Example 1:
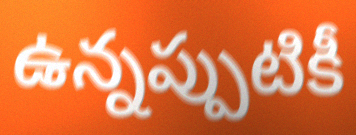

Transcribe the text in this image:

ఉన్నప్పుటికీ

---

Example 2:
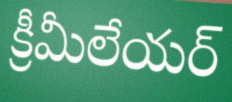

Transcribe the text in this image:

క్రీమీలేయర్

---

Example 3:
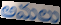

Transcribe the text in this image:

అమలు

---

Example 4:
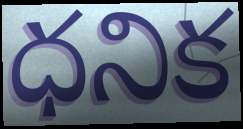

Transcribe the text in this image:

ధనిక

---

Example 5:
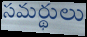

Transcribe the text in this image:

సమర్థులు